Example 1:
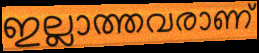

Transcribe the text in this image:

ഇല്ലാത്തവരാണ്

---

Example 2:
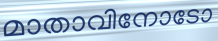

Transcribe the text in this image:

മാതാവിനോടോ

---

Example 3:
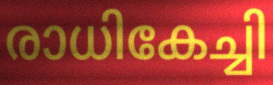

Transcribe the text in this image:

രാധികേച്ചി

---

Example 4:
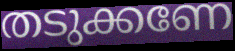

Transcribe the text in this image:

തടുക്കണേ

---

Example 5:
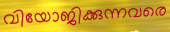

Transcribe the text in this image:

വിയോജിക്കുന്നവരെ